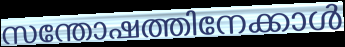
സന്തോഷത്തിനേക്കാൾ